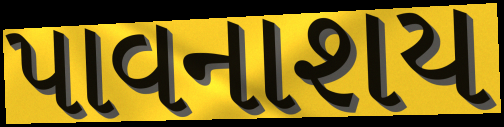
પાવનાશય